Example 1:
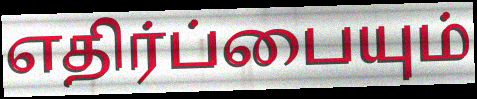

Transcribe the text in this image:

எதிர்ப்பையும்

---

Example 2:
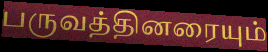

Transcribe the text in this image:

பருவத்தினரையும்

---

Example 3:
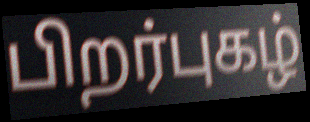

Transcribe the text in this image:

பிறர்புகழ்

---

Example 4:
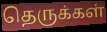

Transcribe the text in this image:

தெருக்கள்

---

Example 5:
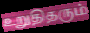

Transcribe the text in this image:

உறுதிதரும்